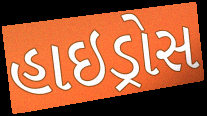
હાઇડ્રોસ